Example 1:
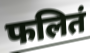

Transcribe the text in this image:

फलितं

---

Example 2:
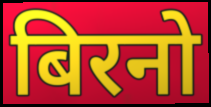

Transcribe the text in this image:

बिरनो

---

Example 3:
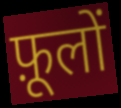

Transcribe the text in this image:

फ़ूलों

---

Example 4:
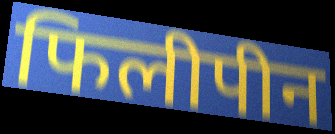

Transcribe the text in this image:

फिलीपीन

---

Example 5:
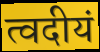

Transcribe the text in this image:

त्वदीयं